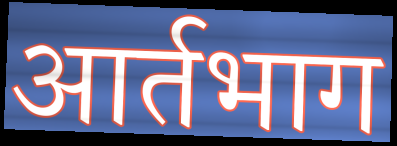
आर्तभाग